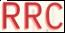
RRC